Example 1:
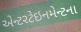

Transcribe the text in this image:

એન્ટરટેઇનમેન્ટના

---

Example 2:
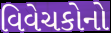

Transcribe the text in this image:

વિવેચકોનો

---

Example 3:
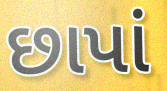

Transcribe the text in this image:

છાપાં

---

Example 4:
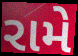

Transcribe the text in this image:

રામે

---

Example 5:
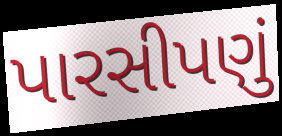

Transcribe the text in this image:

પારસીપણું